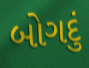
બોગદું